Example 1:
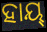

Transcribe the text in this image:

ହାୟ୍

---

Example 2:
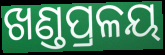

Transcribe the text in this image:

ଖଣ୍ଡପ୍ରଳୟ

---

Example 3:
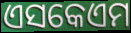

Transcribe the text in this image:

ଏସକେଏମ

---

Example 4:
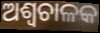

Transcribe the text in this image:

ଅଶ୍ୱଚାଳକ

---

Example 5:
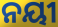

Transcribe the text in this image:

ନୟୀ